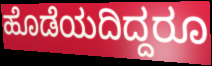
ಹೊಡೆಯದಿದ್ದರೂ